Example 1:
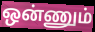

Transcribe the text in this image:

ஒன்ணும்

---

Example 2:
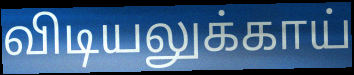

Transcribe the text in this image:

விடியலுக்காய்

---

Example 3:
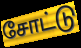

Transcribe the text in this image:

சோட்டு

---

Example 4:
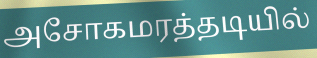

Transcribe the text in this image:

அசோகமரத்தடியில்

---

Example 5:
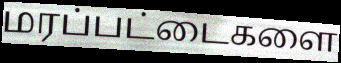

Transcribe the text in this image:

மரப்பட்டைகளை